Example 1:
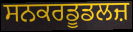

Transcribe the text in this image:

ਸਨਕਰਡੂਡਲਜ਼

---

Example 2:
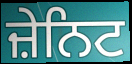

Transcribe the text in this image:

ਜ਼ੇਨਿਟ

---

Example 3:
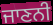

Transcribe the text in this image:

ਜਾਣਨੀ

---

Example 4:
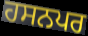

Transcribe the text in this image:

ਹਸਨਪਰ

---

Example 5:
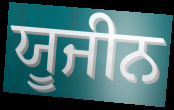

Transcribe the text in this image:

ਯੂਜੀਨ